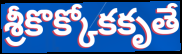
శ్రీకొక్కోకకృతే